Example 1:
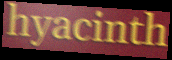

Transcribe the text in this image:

hyacinth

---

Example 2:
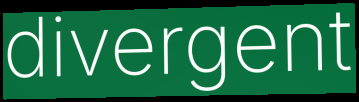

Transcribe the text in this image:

divergent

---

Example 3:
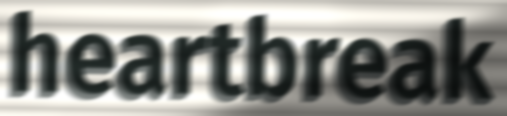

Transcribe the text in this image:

heartbreak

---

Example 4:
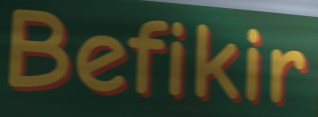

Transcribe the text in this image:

Befikir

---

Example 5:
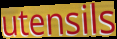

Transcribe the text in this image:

utensils